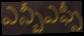
ఎన్బీఎఫ్సీ